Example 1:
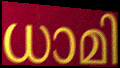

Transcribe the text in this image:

ധാമി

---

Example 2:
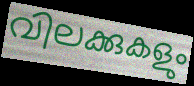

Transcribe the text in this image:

വിലക്കുകളും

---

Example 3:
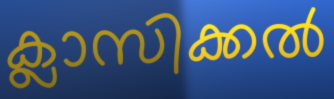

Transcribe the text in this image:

ക്ലാസിക്കൽ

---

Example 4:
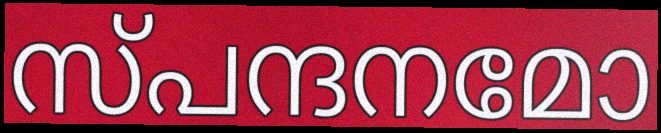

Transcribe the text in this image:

സ്പന്ദനമോ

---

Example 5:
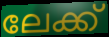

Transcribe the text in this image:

ലേക്ക്